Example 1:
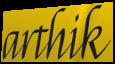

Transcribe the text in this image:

arthik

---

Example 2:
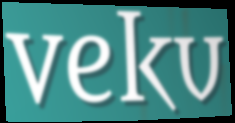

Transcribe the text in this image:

veku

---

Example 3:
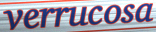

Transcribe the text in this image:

verrucosa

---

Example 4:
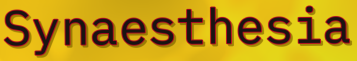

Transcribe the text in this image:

Synaesthesia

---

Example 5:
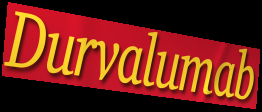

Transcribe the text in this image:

Durvalumab